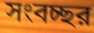
সংবচ্ছর